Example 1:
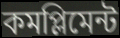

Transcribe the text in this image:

কমপ্লিমেন্ট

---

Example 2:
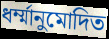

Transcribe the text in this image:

ধর্ম্মানুমোদিত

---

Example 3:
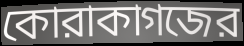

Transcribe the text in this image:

কোরাকাগজের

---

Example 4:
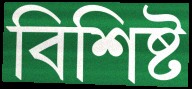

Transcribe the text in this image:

বিশিষ্ট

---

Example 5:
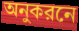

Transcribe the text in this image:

অনুকরনে